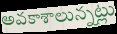
అవకాశాలున్నట్లు